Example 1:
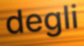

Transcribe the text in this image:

degli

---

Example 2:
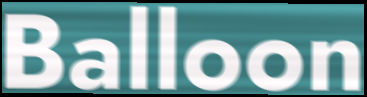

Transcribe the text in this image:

Balloon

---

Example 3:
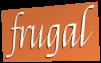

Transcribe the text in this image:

frugal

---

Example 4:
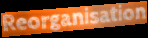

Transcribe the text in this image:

Reorganisation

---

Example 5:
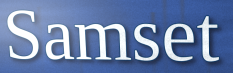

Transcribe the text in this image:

Samset